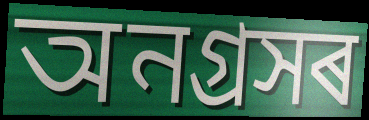
অনগ্ৰসৰ